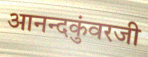
आनन्दकुंवरजी